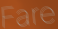
Fare